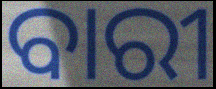
ବାରୀ